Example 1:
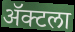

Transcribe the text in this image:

ॲक्टला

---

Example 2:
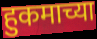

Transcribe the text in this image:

हुकमाच्या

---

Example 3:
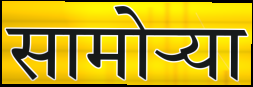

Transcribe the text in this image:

सामोऱ्या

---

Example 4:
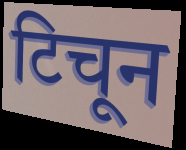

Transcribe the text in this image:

टिचून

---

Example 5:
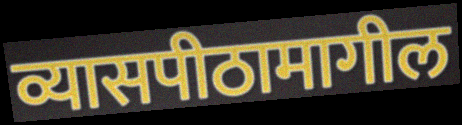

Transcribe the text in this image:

व्यासपीठामागील